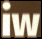
iw